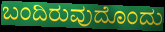
ಬಂದಿರುವುದೊಂದು